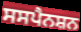
ਸਸਪੈਨਸ਼ਨ